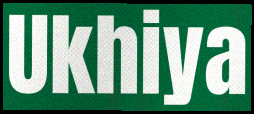
Ukhiya